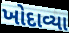
ખોદાવ્યા